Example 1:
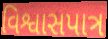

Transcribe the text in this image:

વિશ્વાસપાત્ર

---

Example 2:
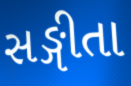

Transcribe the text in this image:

સઙ્ગીતા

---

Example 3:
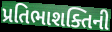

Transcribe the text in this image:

પ્રતિભાશક્તિની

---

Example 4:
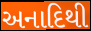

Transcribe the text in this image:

અનાદિથી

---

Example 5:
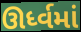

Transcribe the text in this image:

ઊર્ધ્વમાં